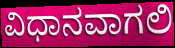
ವಿಧಾನವಾಗಲಿ